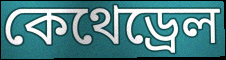
কেথেড্ৰেল